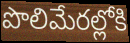
పొలిమేరల్లోకి